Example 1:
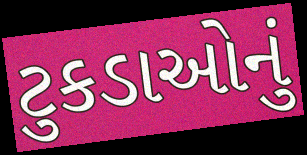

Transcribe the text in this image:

ટુકડાઓનું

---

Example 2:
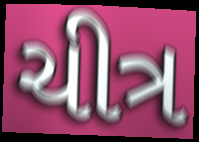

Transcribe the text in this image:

ચીત્ર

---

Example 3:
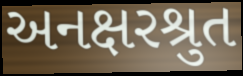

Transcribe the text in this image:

અનક્ષરશ્રુત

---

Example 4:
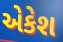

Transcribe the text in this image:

એકેશ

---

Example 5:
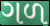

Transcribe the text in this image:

ગળ